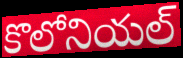
కొలోనియల్